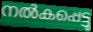
നൽകപ്പെട്ടു